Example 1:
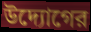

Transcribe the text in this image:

উদ্যোগের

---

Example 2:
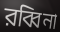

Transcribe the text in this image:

রব্বিনা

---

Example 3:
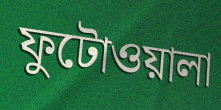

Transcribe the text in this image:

ফুটোওয়ালা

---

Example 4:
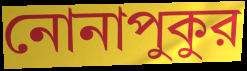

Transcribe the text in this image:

নোনাপুকুর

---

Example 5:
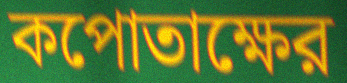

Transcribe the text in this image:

কপোতাক্ষের